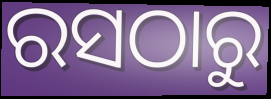
ରସଠାରୁ